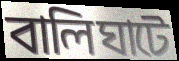
বালিঘাটে